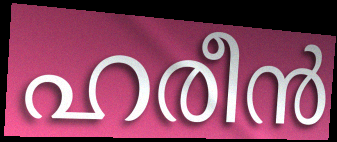
ഹരീൻ